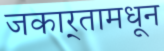
जकार्तामधून